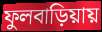
ফুলবাড়িয়ায়